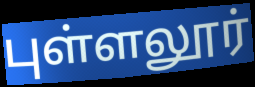
புள்ளலூர்